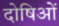
दोषिओं